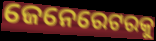
ଜେନେରେଟରକୁ